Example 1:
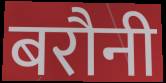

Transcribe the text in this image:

बरौनी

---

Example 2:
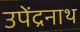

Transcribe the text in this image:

उपेंद्रनाथ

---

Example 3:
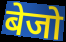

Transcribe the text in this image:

बेजो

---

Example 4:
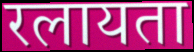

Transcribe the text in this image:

रलायता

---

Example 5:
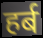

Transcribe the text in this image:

हर्ब